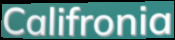
Califronia